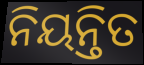
ନିୟନ୍ତିତ